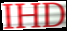
IHD